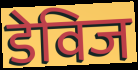
डेविज